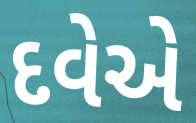
દવેએ